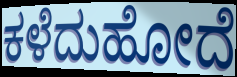
ಕಳೆದುಹೋದೆ